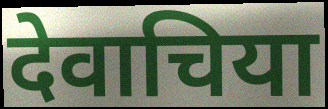
देवाचिया